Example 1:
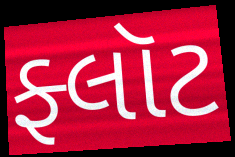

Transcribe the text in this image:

ફ્લૉટ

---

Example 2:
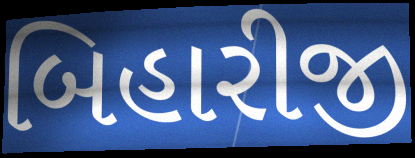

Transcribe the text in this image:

બિહારીજી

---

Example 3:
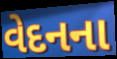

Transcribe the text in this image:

વેદનના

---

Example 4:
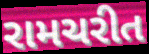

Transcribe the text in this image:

રામચરીત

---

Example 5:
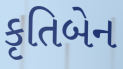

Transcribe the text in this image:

કૃતિબેન